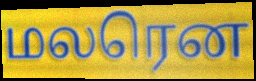
மலரென